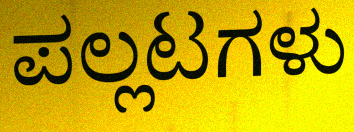
ಪಲ್ಲಟಗಳು